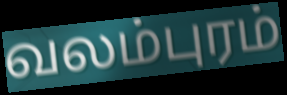
வலம்புரம்